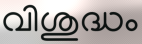
വിശുദ്ധം